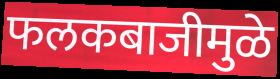
फलकबाजीमुळे